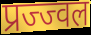
प्रज्ज्वल